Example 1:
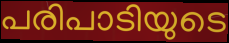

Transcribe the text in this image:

പരിപാടിയുടെ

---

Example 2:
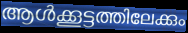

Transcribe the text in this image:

ആൾക്കൂട്ടത്തിലേക്കും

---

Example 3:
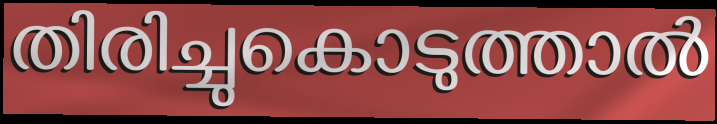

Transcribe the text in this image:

തിരിച്ചുകൊടുത്താൽ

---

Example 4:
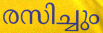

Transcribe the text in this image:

രസിച്ചും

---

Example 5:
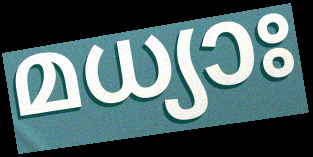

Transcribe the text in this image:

മധ്യാഃ